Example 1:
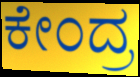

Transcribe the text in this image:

ಕೇಂದ್ರ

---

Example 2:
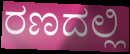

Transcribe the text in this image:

ರಣದಲ್ಲಿ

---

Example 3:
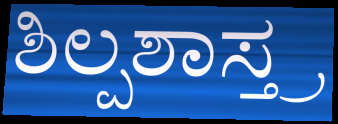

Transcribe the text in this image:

ಶಿಲ್ಪಶಾಸ್ತ್ರ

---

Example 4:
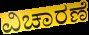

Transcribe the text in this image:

ವಿಚಾರಣೆ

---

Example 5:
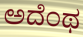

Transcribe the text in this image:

ಅದೆಂಥ